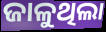
ଜାଳୁଥିଲା